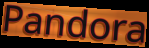
Pandora